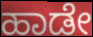
ಹಾಡೇ